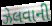
ઝેલવાની